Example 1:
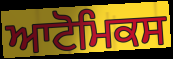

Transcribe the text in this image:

ਆਟੋਮਿਕਸ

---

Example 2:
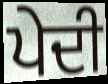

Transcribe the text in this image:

ਪੇਦੀ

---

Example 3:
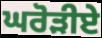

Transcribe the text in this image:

ਘਰੋੜੀਏ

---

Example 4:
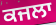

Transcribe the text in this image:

ਕਜਲਾ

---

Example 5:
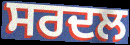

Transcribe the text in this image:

ਸਰਦਲ